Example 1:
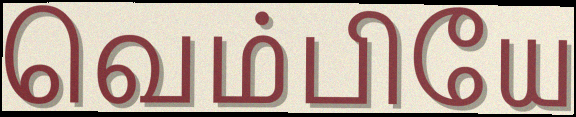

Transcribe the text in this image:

வெம்பியே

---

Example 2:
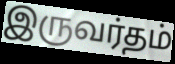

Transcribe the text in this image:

இருவர்தம்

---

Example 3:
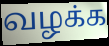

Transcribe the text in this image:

வழக்க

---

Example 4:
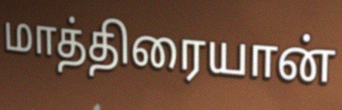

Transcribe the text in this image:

மாத்திரையான்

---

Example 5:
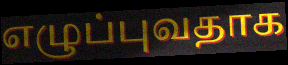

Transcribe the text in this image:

எழுப்புவதாக